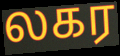
லகர